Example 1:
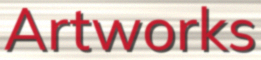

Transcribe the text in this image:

Artworks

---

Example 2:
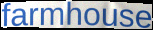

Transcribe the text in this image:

farmhouse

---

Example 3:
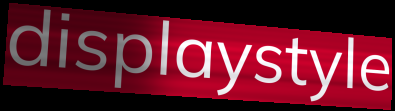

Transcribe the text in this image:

displaystyle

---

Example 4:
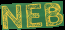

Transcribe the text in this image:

NEB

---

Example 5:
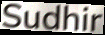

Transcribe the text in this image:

Sudhir